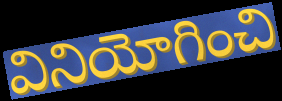
వినియోగించి